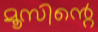
മൂസിന്റെ